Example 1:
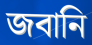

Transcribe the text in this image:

জবানি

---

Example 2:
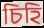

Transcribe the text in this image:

চিহি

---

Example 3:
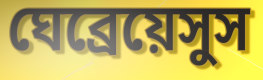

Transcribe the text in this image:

ঘেব্রেয়েসুস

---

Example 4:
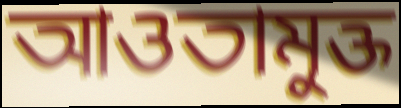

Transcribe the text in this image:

আওতামুক্ত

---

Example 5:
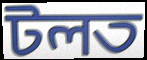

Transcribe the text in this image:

টলত